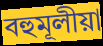
বহুমূলীয়া